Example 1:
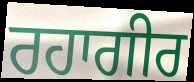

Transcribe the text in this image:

ਰਹਾਗੀਰ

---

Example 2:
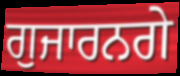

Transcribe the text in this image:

ਗੁਜਾਰਨਗੇ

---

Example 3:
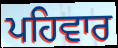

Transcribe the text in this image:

ਪਹਿਵਾਰ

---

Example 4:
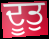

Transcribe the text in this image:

ਦੂਤੁ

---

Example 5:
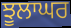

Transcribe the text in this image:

ਝੂਲਾਘਰ